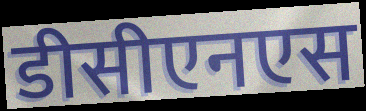
डीसीएनएस